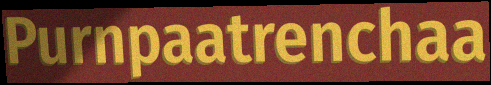
Purnpaatrenchaa